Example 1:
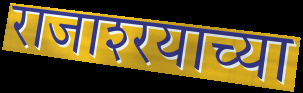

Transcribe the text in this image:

राजाश्रयाच्या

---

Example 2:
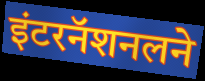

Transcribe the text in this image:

इंटरनॅशनलने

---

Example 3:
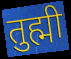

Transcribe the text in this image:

तुह्मी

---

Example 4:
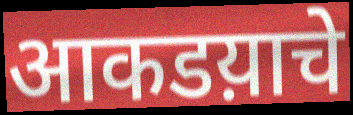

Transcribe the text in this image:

आकडय़ाचे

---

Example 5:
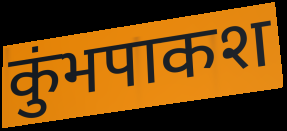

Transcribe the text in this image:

कुंभपाकश